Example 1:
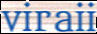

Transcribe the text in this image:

viraii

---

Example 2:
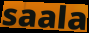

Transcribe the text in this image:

saala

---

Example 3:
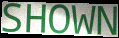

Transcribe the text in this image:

SHOWN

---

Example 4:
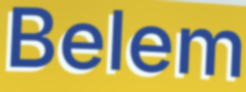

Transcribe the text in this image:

Belem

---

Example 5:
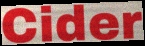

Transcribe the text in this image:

Cider